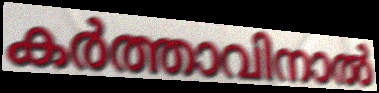
കർത്താവിനാൽ